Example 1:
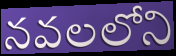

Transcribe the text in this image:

నవలలోని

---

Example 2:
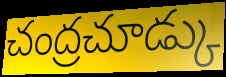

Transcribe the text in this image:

చంద్రచూడ్కు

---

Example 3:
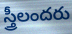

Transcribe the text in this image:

స్త్రీలందరు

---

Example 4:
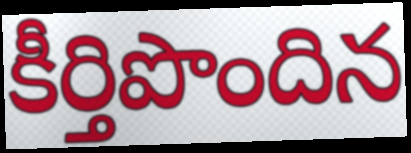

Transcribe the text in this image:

కీర్తిపొందిన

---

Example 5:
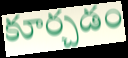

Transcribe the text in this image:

కూర్చడం